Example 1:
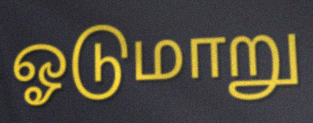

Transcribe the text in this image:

ஓடுமாறு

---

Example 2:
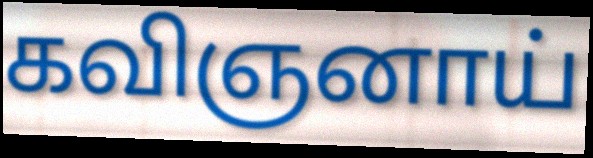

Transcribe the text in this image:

கவிஞனாய்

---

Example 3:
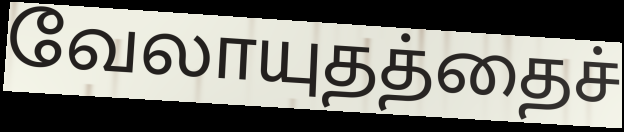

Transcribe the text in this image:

வேலாயுதத்தைச்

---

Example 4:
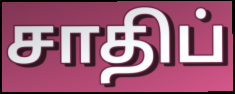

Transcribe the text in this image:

சாதிப்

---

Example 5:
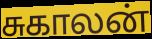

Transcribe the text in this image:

சுகாலன்